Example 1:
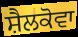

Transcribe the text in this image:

ਸ਼ੈਲਕੋਵਾ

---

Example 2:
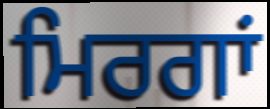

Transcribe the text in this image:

ਮਿਰਗਾਂ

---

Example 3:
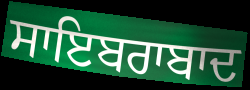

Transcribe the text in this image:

ਸਾਇਬਰਾਬਾਦ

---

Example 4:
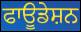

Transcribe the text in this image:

ਫਾਊਡੇਸ਼ਨ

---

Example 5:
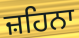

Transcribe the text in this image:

ਜ਼ਹਿਨਾ